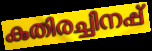
കുതിരച്ചിനപ്പ്